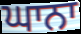
ਘਾਨਾ